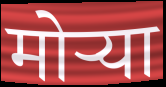
मोऱ्या